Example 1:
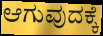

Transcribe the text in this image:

ಆಗುವುದಕ್ಕೆ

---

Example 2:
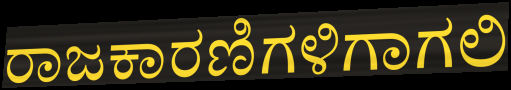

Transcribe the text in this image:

ರಾಜಕಾರಣಿಗಳಿಗಾಗಲಿ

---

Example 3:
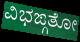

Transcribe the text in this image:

ವಿಭಙ್ಗತೋ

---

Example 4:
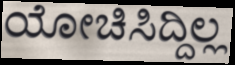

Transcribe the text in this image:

ಯೋಚಿಸಿದ್ದಿಲ್ಲ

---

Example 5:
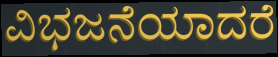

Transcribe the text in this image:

ವಿಭಜನೆಯಾದರೆ